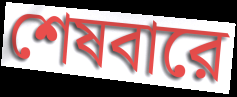
শেষবারে